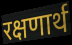
रक्षणार्थ